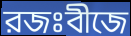
রজঃবীজে